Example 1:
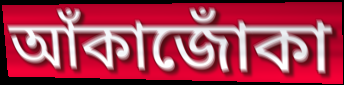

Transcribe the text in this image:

আঁকাজোঁকা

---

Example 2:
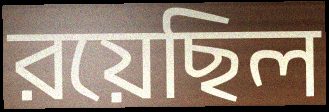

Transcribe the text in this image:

রয়েছিল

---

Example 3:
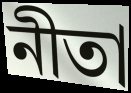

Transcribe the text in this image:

নীতা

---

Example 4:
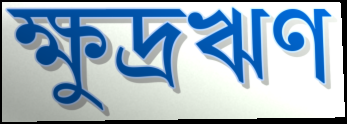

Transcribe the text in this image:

ক্ষুদ্রঋণ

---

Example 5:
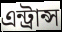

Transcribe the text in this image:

এন্ট্রান্স